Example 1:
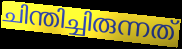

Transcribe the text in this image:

ചിന്തിച്ചിരുന്നത്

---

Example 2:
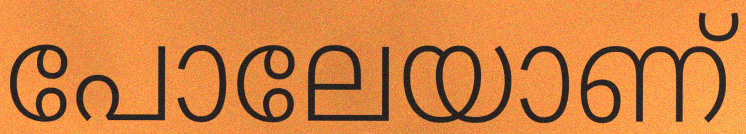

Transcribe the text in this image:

പോലേയാണ്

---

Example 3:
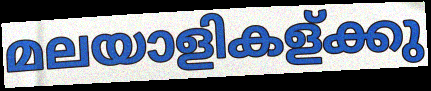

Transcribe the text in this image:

മലയാളികള്ക്കു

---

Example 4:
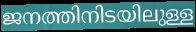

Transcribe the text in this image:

ജനത്തിനിടയിലുള്ള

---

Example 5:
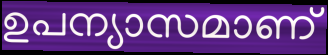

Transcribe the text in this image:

ഉപന്യാസമാണ്